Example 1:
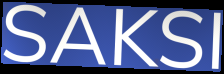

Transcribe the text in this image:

SAKSI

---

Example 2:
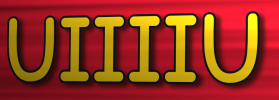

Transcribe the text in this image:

UIIIIU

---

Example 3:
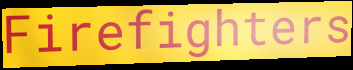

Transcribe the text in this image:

Firefighters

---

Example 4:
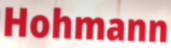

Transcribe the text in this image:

Hohmann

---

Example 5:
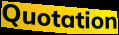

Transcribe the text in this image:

Quotation